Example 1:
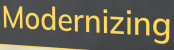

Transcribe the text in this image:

Modernizing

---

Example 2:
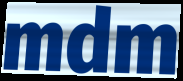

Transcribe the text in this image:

mdm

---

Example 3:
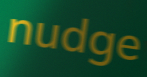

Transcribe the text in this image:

nudge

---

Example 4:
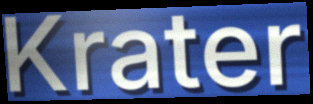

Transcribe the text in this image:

Krater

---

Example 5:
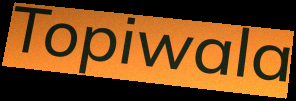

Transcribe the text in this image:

Topiwala